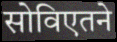
सोविएतने